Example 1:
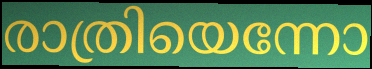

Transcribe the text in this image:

രാത്രിയെന്നോ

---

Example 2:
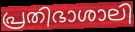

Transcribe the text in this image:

പ്രതിഭാശാലി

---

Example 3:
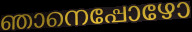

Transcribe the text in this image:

ഞാനെപ്പോഴോ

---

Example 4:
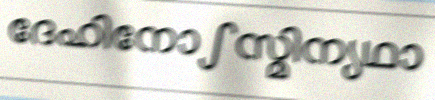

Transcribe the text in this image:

ദേഹിനോഽസ്മിന്യഥാ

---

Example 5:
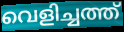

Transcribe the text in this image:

വെളിച്ചത്ത്